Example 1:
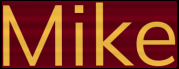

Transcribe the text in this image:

Mike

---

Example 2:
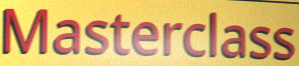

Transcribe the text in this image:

Masterclass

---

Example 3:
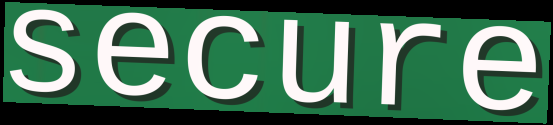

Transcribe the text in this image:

secure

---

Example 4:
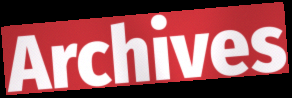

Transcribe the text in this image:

Archives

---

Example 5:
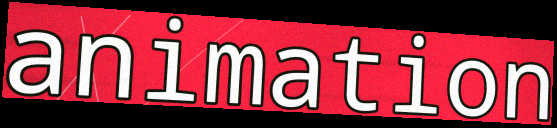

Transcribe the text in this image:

animation